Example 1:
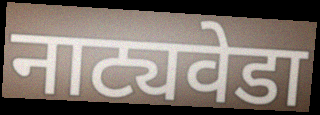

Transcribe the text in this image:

नाट्यवेडा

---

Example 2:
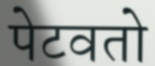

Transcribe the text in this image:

पेटवतो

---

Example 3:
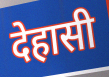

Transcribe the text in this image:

देहासी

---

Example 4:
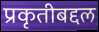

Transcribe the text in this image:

प्रकृतीबद्दल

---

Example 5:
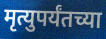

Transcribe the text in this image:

मृत्युपर्यंतच्या